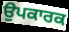
ਉਪਕਾਰਕ